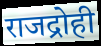
राजद्रोही